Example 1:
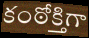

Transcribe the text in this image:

కంఠోక్తిగా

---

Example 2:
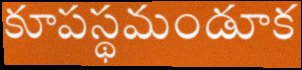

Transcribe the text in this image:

కూపస్థమండూక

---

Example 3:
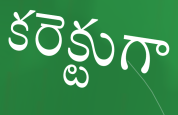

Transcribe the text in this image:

కరెక్టుగా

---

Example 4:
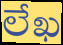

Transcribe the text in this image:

లేఖ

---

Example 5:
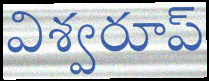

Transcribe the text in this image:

విశ్వరూప్